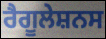
ਰੈਗੂਲੇਸ਼ਨਸ